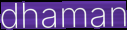
dhaman